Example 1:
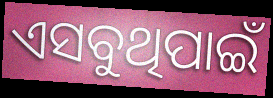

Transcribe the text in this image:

ଏସବୁଥିପାଇଁ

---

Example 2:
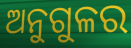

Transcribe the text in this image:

ଅନୁଗୁଳର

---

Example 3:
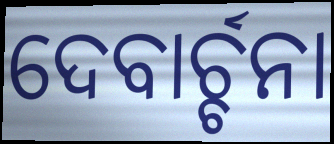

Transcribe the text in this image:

ଦେବାର୍ଚ୍ଚନା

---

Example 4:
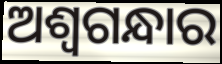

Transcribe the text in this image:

ଅଶ୍ୱଗନ୍ଧାର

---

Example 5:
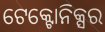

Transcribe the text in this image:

ଟେକ୍ଟୋନିକ୍ସର